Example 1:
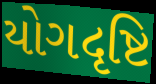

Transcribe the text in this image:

યોગદૃષ્ટિ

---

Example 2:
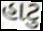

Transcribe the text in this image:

હાટુ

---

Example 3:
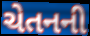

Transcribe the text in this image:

ચેતનની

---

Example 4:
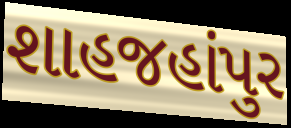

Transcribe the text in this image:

શાહજહાંપુર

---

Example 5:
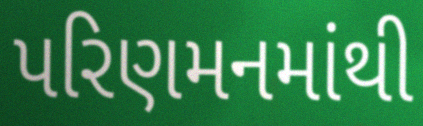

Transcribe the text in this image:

પરિણમનમાંથી